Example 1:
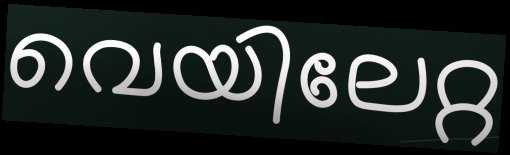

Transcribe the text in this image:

വെയിലേറ്റ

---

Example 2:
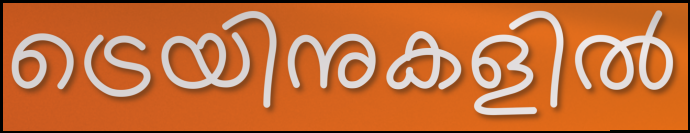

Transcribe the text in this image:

ട്രെയിനുകളിൽ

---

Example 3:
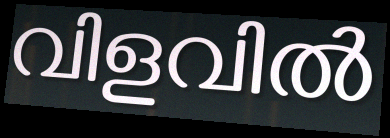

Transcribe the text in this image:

വിളവിൽ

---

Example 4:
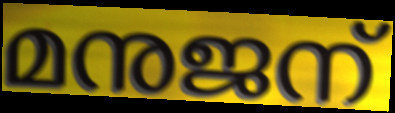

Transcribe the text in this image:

മനുജന്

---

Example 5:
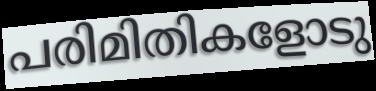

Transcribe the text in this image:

പരിമിതികളോടു